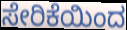
ಸೇರಿಕೆಯಿಂದ